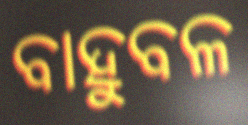
ବାହୁବଳ